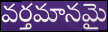
వర్తమానమై